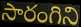
సారంగిని